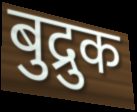
बुद्रुक